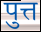
पुत्त